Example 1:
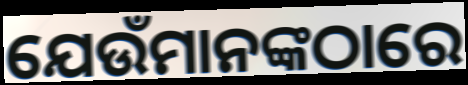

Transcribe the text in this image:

ଯେଉଁମାନଙ୍କଠାରେ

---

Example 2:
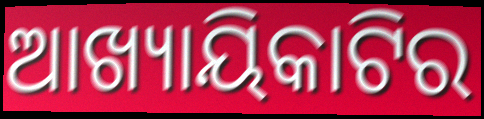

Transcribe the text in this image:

ଆଖ୍ୟାୟିକାଟିର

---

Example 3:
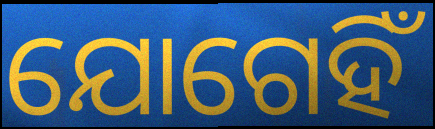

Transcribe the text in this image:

ଯୋଗେହିଁ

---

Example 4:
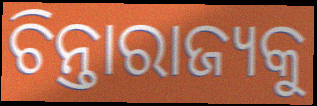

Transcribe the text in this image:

ଚିନ୍ତାରାଜ୍ୟକୁ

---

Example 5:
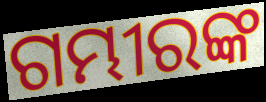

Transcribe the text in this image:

ଗମ୍ଭୀରଙ୍କ